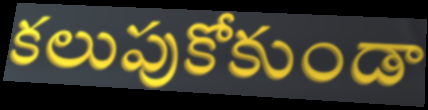
కలుపుకోకుండా